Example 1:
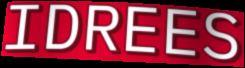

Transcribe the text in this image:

IDREES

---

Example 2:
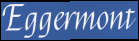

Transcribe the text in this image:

Eggermont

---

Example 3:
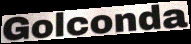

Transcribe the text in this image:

Golconda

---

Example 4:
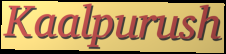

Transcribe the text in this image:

Kaalpurush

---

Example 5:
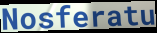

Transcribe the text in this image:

Nosferatu